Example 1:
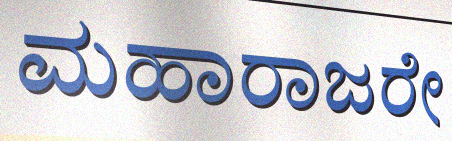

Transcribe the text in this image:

ಮಹಾರಾಜರೇ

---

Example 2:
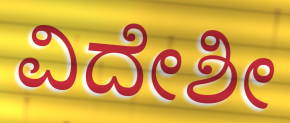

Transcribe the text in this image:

ವಿದೇಶೀ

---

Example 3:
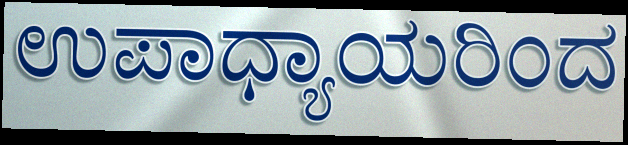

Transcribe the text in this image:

ಉಪಾಧ್ಯಾಯರಿಂದ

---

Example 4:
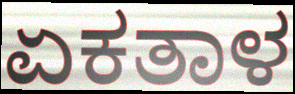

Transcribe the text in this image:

ಏಕತಾಳ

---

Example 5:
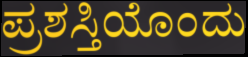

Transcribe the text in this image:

ಪ್ರಶಸ್ತಿಯೊಂದು